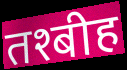
तश्बीह